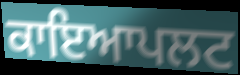
ਕਾਇਆਪਲਟ